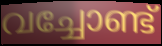
വച്ചോണ്ട്